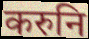
करुनि